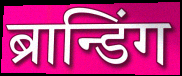
ब्रान्डिंग